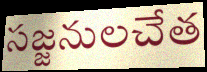
సజ్జనులచేత